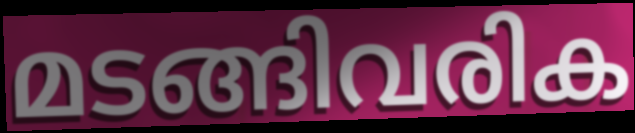
മടങ്ങിവരിക